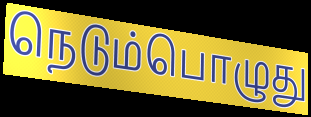
நெடும்பொழுது